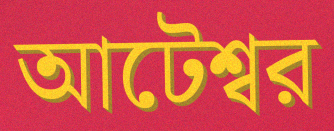
আটেশ্বর